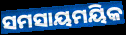
ସମସାୟମୟିକ